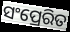
ସଂପ୍ରେରିତ